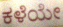
ಕಳೆಯೇ